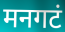
मनगटं